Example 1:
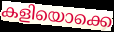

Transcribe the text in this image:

കളിയൊക്കെ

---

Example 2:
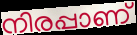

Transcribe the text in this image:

നിരപ്പാണ്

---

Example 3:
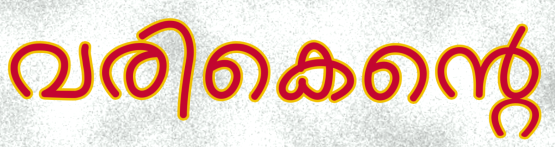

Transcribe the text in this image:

വരികെന്റെ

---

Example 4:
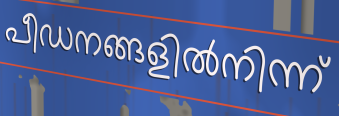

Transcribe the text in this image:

പീഡനങ്ങളിൽനിന്ന്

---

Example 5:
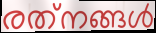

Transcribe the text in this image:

രത്‌നങ്ങൾ